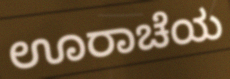
ಊರಾಚೆಯ